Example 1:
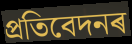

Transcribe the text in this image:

প্ৰতিবেদনৰ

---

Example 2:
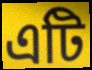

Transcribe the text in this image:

এটি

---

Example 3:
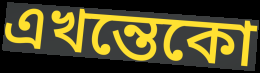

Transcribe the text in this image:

এখন্তেকো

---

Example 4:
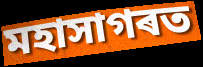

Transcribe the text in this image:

মহাসাগৰত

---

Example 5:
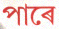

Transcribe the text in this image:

পাৰে